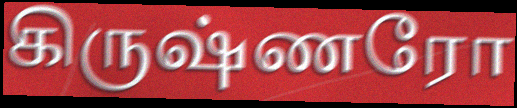
கிருஷ்ணரோ